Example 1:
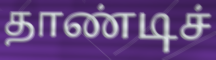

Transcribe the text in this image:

தாண்டிச்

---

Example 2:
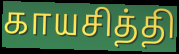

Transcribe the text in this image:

காயசித்தி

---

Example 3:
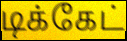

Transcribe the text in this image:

டிக்கேட்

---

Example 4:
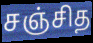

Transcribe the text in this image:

சஞ்சித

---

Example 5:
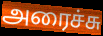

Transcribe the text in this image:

அரைச்சு